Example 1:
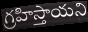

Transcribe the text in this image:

గ్రహిస్తాయని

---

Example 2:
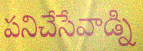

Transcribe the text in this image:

పనిచేసేవాడ్ని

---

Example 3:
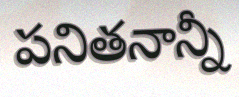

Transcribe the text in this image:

పనితనాన్నీ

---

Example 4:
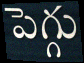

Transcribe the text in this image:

పెగ్గు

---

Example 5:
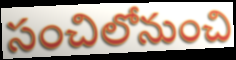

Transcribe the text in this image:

సంచిలోనుంచి